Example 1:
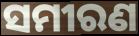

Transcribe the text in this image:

ସମୀରଣ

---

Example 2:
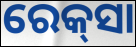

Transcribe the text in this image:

ରେକ୍‍ସା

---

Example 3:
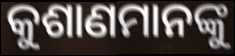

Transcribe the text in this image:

କୁଶାଣମାନଙ୍କୁ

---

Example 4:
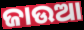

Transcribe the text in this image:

ଜାଉଆ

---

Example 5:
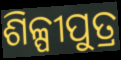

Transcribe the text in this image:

ଶିଳ୍ପୀପୁତ୍ର